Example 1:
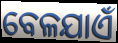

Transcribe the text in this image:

ବେଳଯାଏଁ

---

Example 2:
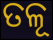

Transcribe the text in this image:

ତଳୂ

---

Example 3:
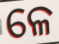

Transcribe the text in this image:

ଳେ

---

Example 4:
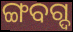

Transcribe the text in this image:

ଙ୍ଗବଗ୍ଦ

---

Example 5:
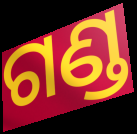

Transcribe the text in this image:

ଗଣ୍ଡ